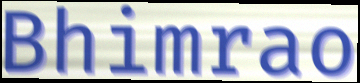
Bhimrao